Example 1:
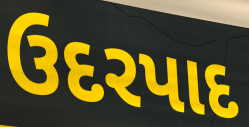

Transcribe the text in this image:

ઉદરપાદ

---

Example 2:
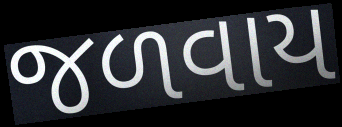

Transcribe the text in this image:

જળવાય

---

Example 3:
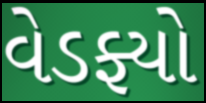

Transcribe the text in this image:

વેડફ્યો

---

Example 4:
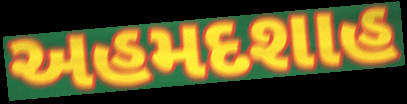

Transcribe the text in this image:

અહમદશાહ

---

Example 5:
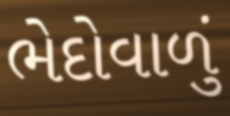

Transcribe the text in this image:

ભેદોવાળું